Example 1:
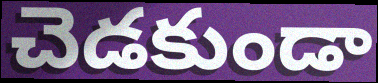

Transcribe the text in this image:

చెడకుండా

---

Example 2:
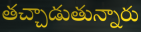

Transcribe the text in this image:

తచ్చాడుతున్నారు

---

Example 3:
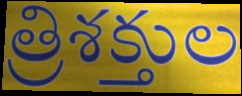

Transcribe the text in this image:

త్రిశక్తుల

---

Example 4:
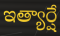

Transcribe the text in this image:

ఇత్యార్షే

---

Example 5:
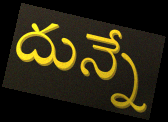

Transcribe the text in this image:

దున్నే